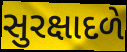
સુરક્ષાદળે